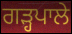
ਗੜ੍ਹਪਾਲੇ